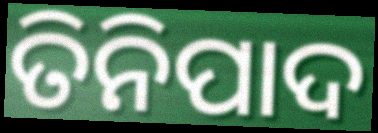
ତିନିପାଦ